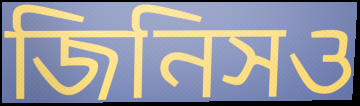
জিনিসও